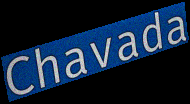
Chavada